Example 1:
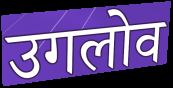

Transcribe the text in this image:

उगलोव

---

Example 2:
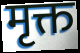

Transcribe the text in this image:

मृक्त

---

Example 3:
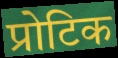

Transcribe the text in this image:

प्रोटिक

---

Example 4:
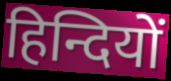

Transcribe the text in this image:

हिन्दियों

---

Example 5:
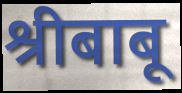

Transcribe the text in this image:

श्रीबाबू